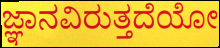
ಜ್ಞಾನವಿರುತ್ತದೆಯೋ